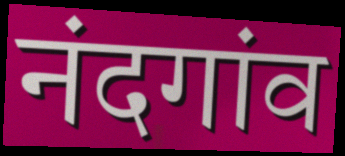
नंदगांव